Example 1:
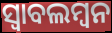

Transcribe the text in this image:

ସ୍ୱାବଲମ୍ବନ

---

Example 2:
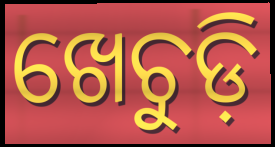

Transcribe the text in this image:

ଖେଚୁଡ଼ି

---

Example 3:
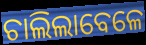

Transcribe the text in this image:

ଚାଲିଲାବେଳେ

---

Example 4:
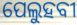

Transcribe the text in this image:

ପେଲୁହବୀ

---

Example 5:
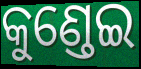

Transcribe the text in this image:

କୁଣ୍ଡେଇ